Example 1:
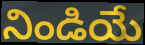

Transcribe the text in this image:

నిండియే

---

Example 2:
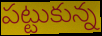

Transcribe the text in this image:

పట్టుకున్న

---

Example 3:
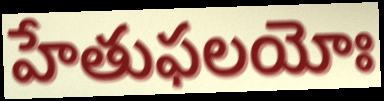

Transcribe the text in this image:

హేతుఫలయోః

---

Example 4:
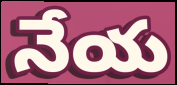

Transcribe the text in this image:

నేయ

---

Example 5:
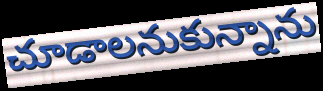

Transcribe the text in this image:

చూడాలనుకున్నాను